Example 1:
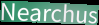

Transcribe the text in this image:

Nearchus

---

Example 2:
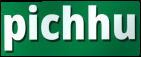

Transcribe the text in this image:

pichhu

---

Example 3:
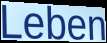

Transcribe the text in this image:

Leben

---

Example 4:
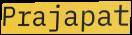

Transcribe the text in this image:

Prajapat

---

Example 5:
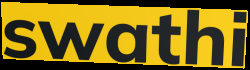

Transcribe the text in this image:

swathi